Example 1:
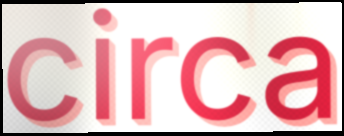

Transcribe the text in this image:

circa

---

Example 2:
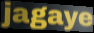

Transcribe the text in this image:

jagaye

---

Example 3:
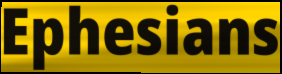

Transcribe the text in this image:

Ephesians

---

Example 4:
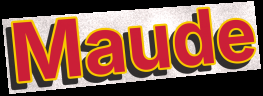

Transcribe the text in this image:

Maude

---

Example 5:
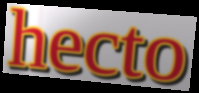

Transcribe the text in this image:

hecto